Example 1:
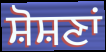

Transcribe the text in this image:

ਸ਼ੋਸ਼ਣਾਂ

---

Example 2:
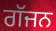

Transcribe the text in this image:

ਗੱਜਨ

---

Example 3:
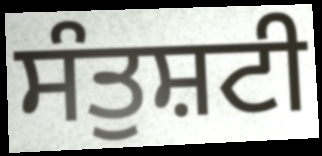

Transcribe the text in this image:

ਸੰਤੁਸ਼ਟੀ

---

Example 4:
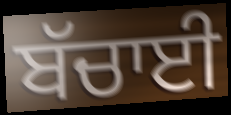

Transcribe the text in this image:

ਬੱਚਾਈ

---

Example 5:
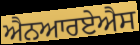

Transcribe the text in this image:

ਐਨਆਰਏਐਸ